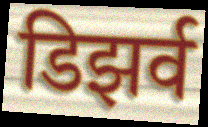
डिझर्व